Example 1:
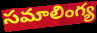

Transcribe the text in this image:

సమాలింగ్య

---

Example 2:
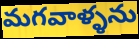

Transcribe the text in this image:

మగవాళ్ళను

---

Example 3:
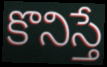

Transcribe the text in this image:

కొనిస్తే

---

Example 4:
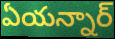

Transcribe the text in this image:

ఏయన్నార్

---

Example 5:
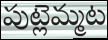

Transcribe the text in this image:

పుట్లెమ్మట